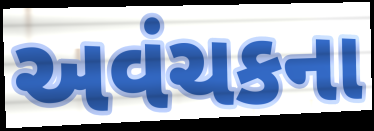
અવંચકના